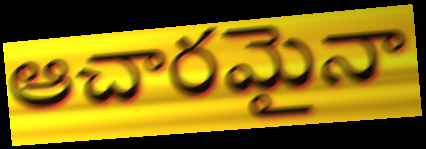
ఆచారమైనా